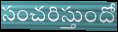
సంచరిస్తుందో